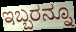
ಇಬ್ಬರನ್ನೂ